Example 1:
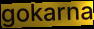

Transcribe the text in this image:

gokarna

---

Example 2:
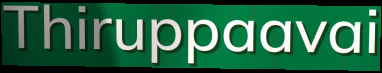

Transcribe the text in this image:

Thiruppaavai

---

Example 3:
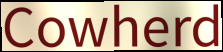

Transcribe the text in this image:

Cowherd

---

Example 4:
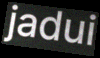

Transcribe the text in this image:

jadui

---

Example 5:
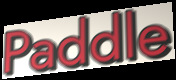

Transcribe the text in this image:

Paddle